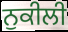
ਨੁਕੀਲੀ